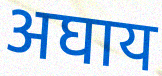
अघाय